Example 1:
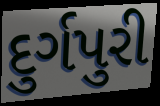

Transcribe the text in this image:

દુર્ગપુરી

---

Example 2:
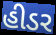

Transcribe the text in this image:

હીડર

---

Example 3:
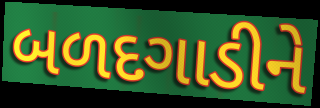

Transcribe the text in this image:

બળદગાડીને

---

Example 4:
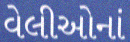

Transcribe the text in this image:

વેલીઓનાં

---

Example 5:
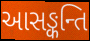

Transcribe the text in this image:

આસઙ્કન્તિ